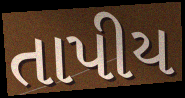
તાપીય